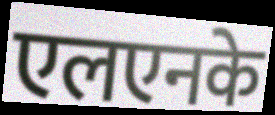
एलएनके